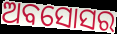
ଅବସୋସର